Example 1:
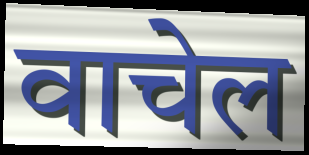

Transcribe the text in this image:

वाचेल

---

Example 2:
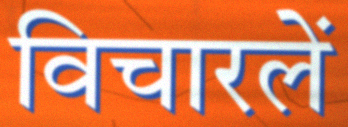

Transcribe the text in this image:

विचारलें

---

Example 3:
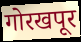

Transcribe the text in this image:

गोरखपूर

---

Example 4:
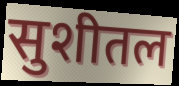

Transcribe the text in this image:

सुशीतल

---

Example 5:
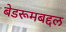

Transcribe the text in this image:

बेडरूमबद्दल